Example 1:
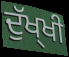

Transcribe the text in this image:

ਦੁੱਖ੍ਖੀ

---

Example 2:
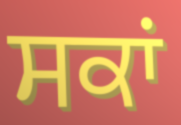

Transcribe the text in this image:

ਸਕਾਂ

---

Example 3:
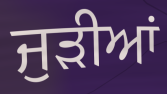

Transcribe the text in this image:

ਜੁੜੀਆਂ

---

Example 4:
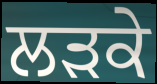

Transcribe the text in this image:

ਲੜਕੇ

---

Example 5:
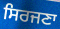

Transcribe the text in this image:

ਸਿਰਜਣਾ